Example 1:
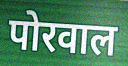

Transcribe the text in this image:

पोरवाल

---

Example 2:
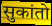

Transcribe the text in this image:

सुकांतो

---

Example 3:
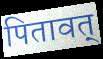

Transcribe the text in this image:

पितावत्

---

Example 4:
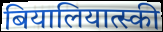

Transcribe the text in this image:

बियालियात्स्की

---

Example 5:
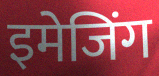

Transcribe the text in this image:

इमेजिंग